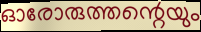
ഓരോരുത്തന്റെയും